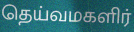
தெய்வமகளிர்